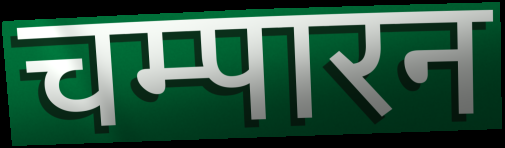
चम्पारन